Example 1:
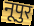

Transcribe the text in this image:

नूपुर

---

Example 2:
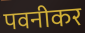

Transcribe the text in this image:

पवनीकर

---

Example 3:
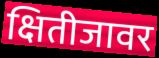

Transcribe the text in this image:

क्षितीजावर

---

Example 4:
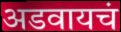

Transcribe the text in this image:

अडवायचं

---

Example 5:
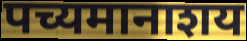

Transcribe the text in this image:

पच्यमानाशय